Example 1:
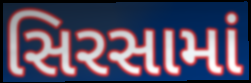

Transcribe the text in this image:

સિરસામાં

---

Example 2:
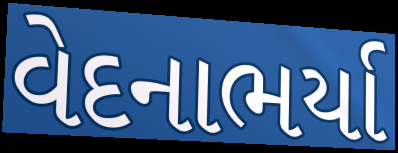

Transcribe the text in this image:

વેદનાભર્યા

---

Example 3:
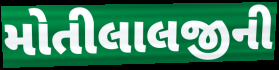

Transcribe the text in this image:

મોતીલાલજીની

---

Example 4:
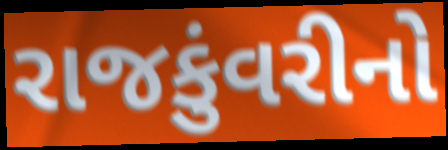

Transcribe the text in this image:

રાજકુંવરીનો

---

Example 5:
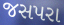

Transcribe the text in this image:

જસપરા